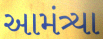
આમંત્ર્યા